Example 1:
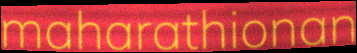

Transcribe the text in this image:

maharathionan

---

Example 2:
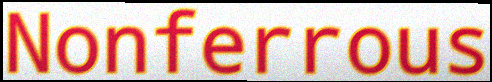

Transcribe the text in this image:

Nonferrous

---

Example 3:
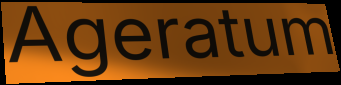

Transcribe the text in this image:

Ageratum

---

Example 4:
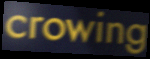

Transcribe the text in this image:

crowing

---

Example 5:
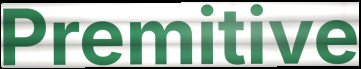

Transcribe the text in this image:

Premitive